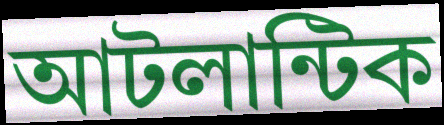
আটলান্টিক